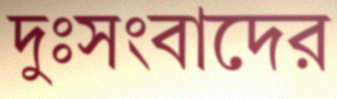
দুঃসংবাদের